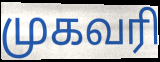
முகவரி